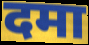
दमा